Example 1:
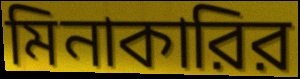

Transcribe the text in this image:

মিনাকারির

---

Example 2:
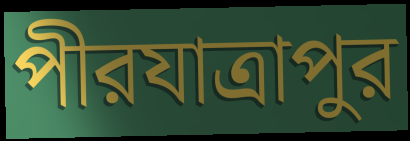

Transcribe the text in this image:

পীরযাত্রাপুর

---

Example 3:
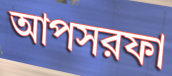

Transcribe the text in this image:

আপসরফা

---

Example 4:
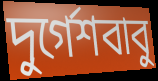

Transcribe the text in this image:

দুর্গেশবাবু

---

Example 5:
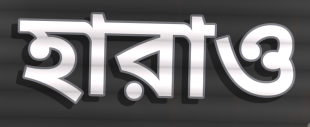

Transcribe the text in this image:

হারাও